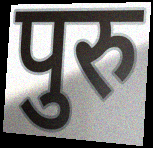
पुरु